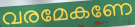
വരമേകണേ